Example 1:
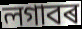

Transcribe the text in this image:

লগাবৰ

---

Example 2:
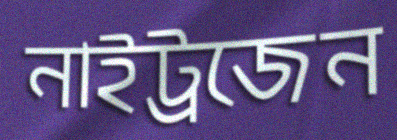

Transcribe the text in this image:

নাইট্ৰজেন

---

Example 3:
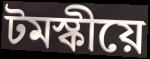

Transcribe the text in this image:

টমস্কীয়ে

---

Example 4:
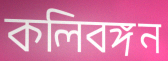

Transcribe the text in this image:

কলিবঙ্গন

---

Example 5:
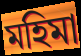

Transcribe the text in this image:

মহিমা